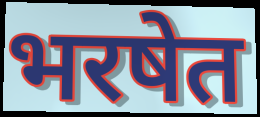
भरषेत